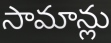
సామాన్లు